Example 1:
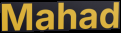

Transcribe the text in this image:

Mahad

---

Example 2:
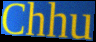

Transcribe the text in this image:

Chhu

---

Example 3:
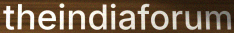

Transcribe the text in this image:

theindiaforum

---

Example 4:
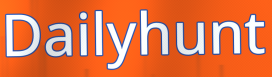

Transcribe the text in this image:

Dailyhunt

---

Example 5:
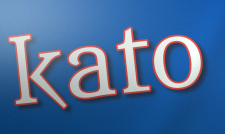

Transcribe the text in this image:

kato